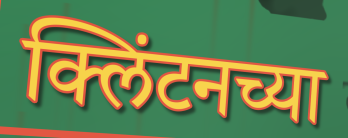
क्लिंटनच्या